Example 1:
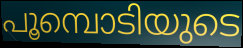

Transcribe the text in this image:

പൂമ്പൊടിയുടെ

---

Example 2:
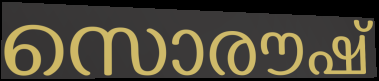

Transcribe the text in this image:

സൊരൗഷ്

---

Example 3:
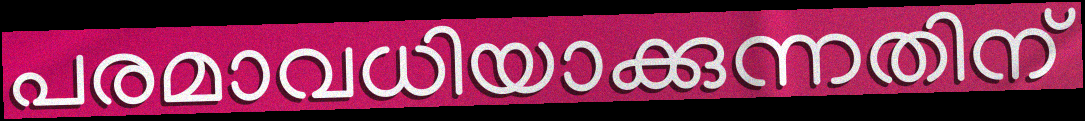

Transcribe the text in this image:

പരമാവധിയാക്കുന്നതിന്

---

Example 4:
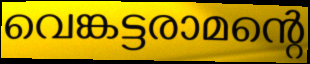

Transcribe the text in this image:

വെങ്കട്ടരാമന്റെ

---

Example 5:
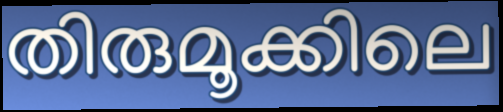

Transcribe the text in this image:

തിരുമൂക്കിലെ